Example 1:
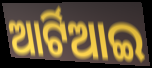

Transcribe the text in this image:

ଆର୍ଟିଆଇ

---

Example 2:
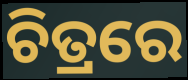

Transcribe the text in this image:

ଚିତ୍ରରେ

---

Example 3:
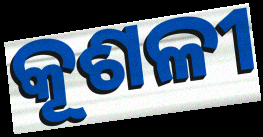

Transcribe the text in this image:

କୂଶଳୀ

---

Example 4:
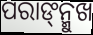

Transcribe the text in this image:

ପରାଙ୍‌ନ୍ମୁଖ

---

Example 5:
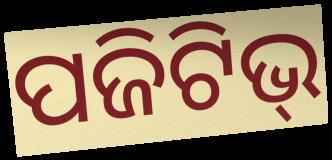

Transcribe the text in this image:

ପଜିଟିଭ୍